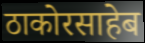
ठाकोरसाहेब